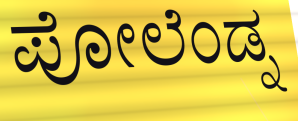
ಪೋಲೆಂಡ್ನ